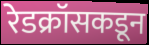
रेडक्रॉसकडून